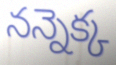
నన్నెక్క